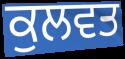
ਕੁਲਵਤ